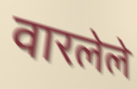
वारलेले